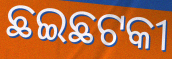
ଛଇଛଟକୀ